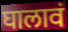
घालावं